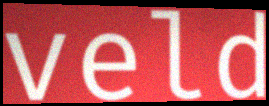
veld